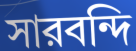
সারবন্দি